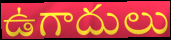
ఉగాదులు